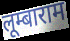
लूम्बाराम